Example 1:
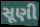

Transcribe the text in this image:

સૂણી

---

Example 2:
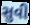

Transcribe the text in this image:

સુવી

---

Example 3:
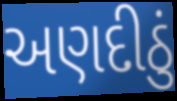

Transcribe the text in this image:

અણદીઠું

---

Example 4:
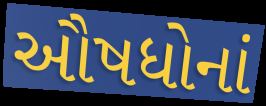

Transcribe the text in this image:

ઔષધોનાં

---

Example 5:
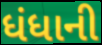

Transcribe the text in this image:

ધંધાની